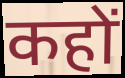
कहों